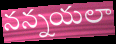
నన్నయలా